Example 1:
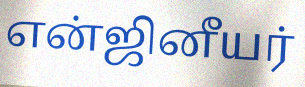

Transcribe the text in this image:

என்ஜினீயர்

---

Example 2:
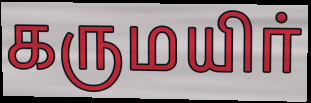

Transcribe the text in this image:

கருமயிர்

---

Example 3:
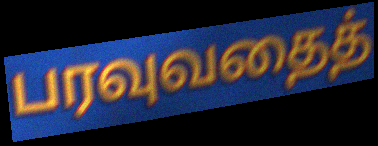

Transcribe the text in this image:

பரவுவதைத்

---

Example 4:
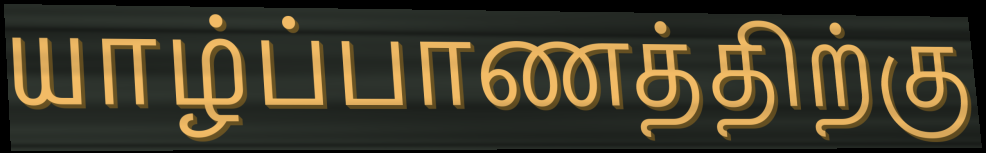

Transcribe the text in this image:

யாழ்ப்பாணத்திற்கு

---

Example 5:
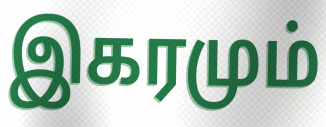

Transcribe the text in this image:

இகரமும்